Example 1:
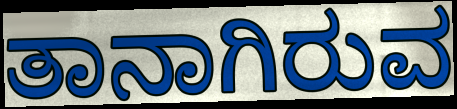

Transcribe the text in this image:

ತಾನಾಗಿರುವ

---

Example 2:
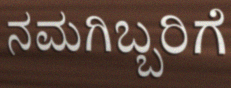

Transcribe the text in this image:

ನಮಗಿಬ್ಬರಿಗೆ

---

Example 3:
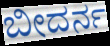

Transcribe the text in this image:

ಬೀದರ್ನ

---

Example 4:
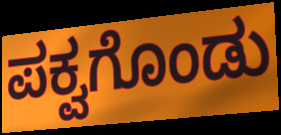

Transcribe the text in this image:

ಪಕ್ವಗೊಂಡು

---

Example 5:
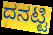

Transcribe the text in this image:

ದನಟ್ಟಿ